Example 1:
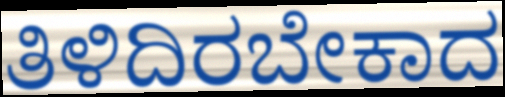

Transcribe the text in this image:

ತಿಳಿದಿರಬೇಕಾದ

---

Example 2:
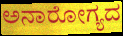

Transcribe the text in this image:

ಅನಾರೋಗ್ಯದ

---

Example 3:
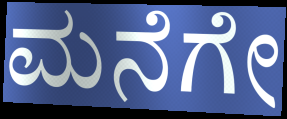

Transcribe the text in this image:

ಮನೆಗೇ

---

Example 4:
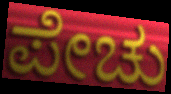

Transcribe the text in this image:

ಪೇಚು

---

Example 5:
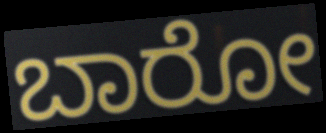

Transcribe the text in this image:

ಬಾರೋ